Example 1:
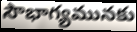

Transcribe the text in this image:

సౌభాగ్యమునకు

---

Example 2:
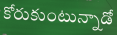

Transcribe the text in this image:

కోరుకుంటున్నాడో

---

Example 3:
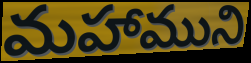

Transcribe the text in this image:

మహాముని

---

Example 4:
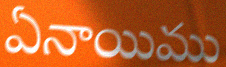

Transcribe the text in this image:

ఏనాయిము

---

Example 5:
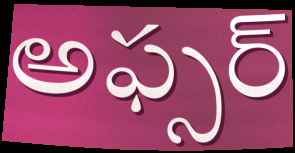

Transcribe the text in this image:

అఫ్సర్